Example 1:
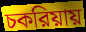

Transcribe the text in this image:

চকরিয়ায়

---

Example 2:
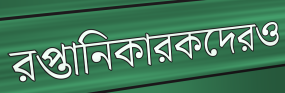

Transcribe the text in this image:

রপ্তানিকারকদেরও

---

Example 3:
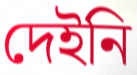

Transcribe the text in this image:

দেইনি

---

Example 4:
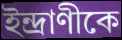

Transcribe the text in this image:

ইন্দ্রাণীকে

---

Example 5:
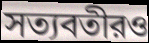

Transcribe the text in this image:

সত্যবতীরও